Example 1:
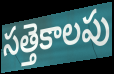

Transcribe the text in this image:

సత్తెకాలపు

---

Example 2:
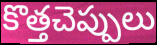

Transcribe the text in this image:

కొత్తచెప్పులు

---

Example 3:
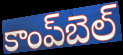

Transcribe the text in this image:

కాంప్‌బెల్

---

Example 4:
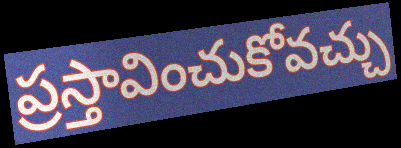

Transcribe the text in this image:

ప్రస్తావించుకోవచ్చు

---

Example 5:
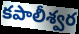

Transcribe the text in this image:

కపాలీశ్వర